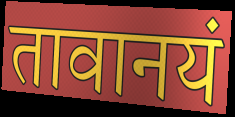
तावानयं